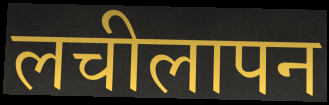
लचीलापन